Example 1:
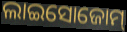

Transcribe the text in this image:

ଲାଇସୋଜୋମ୍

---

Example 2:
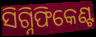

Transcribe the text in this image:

ସିଗ୍ନିଫିକେଣ୍ଟ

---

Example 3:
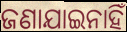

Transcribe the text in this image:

ଜଣାଯାଇନାହିଁ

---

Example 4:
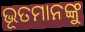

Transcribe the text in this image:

ଭୂତମାନଙ୍କୁ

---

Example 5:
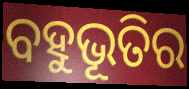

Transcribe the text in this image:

ବହୁଭୂତିର